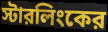
স্টারলিংকের